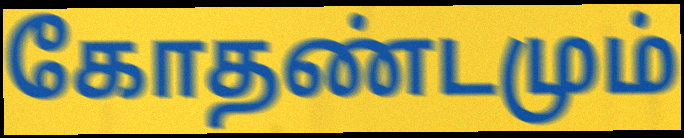
கோதண்டமும்